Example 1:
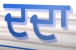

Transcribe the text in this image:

ਦਦਾ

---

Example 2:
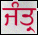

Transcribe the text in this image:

ਜੰਤ੍ਰ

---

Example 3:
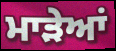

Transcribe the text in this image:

ਮਾੜੇਆਂ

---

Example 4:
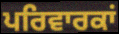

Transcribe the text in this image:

ਪਰਿਵਾਰਕਾਂ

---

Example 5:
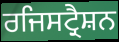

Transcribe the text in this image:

ਰਜਿਸਟ੍ਰੈਸ਼ਨ